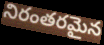
నిరంతరమైన